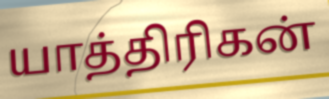
யாத்திரிகன்